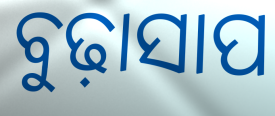
ବୁଢ଼ାସାପ